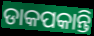
ଡାକପକାନ୍ତି